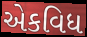
એકવિધ